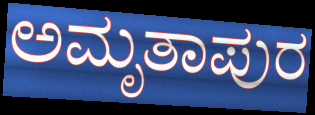
ಅಮೃತಾಪುರ